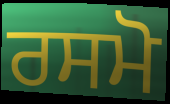
ਰਸਮੋ